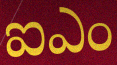
ఐఎం